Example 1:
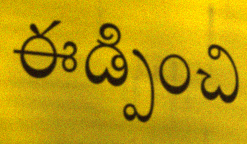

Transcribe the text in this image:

ఈడ్పించి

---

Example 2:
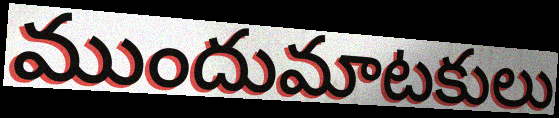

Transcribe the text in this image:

ముందుమాటకులు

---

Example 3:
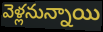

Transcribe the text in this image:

వెళ్లనున్నాయి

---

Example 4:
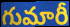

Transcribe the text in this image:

గుమారీ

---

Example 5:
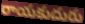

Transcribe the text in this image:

రాయకుదురు